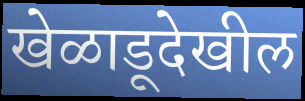
खेळाडूदेखील